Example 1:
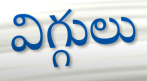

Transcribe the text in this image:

విగ్గులు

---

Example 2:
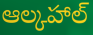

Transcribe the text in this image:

ఆల్కహాల్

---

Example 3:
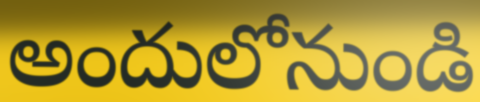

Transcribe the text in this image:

అందులోనుండి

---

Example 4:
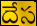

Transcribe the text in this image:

దేస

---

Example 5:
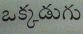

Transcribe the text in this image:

ఒక్కడుగు